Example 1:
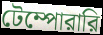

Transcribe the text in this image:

টেম্পোরারি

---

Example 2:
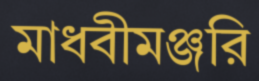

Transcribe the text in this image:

মাধবীমঞ্জরি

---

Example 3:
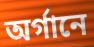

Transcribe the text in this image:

অর্গানে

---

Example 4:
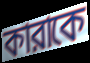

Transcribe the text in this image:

কারাকে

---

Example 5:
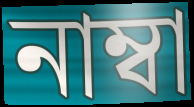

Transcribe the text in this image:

নাম্বা